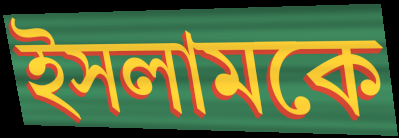
ইসলামকে